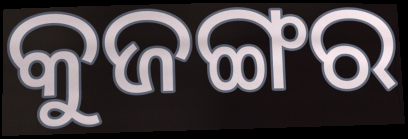
କୁଜଙ୍ଗର